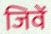
जिवें